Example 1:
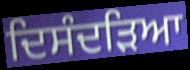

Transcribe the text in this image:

ਦਿਸੰਦੜਿਆ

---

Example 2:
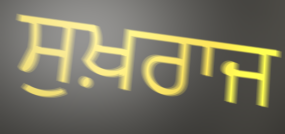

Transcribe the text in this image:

ਸੁਖ਼ਰਾਜ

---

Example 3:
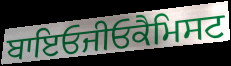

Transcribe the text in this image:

ਬਾਇਓਜੀਓਕੈਮਿਸਟ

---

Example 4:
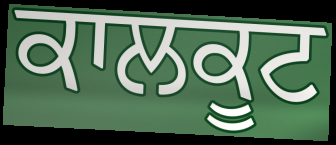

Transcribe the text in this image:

ਕਾਲਕੂਟ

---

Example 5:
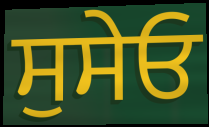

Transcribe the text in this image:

ਸੁਸੇਓ